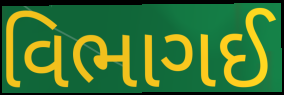
વિભાગઈ